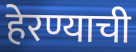
हेरण्याची